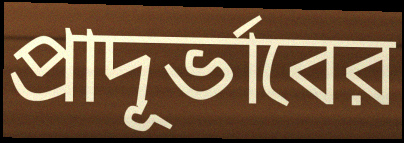
প্রাদূর্ভাবের